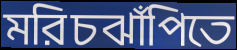
মরিচঝাঁপিতে